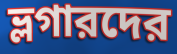
ভ্লগারদের